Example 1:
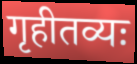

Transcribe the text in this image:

गृहीतव्यः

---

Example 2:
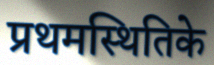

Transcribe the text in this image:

प्रथमस्थितिके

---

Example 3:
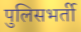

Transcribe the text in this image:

पुलिसभर्ती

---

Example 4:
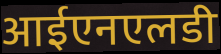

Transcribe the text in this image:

आईएनएलडी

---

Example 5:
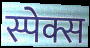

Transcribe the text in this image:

स्पेक्स